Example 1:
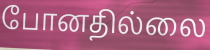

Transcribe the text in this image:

போனதில்லை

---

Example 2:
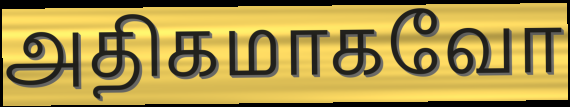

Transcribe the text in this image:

அதிகமாகவோ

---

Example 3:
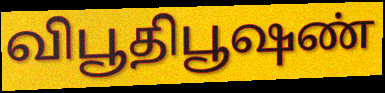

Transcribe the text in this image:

விபூதிபூஷண்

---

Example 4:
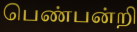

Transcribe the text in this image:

பெண்பன்றி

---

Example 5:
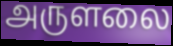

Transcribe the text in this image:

அருளலை